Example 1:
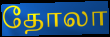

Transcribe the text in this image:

தோலா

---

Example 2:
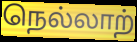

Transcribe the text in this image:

நெல்லாற்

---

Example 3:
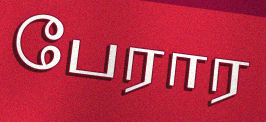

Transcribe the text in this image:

பேரார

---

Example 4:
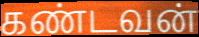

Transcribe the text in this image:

கண்டவன்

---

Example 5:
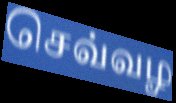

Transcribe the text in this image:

செவ்வழ